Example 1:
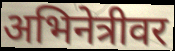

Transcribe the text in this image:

अभिनेत्रीवर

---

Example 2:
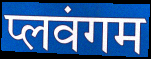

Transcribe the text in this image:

प्लवंगम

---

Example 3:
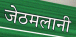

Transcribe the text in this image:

जेठमलानी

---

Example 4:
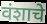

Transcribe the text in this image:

वंशाचे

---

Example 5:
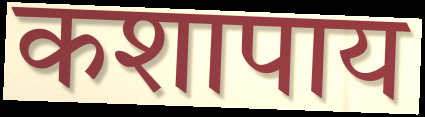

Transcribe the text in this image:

कशापाय